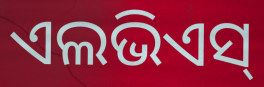
ଏଲଭିଏସ୍